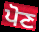
ਪੋਣ